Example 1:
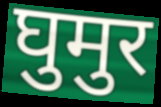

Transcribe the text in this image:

घुमुर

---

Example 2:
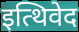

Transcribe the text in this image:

इत्थिवेद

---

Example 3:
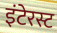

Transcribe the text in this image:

इंटेरस्ट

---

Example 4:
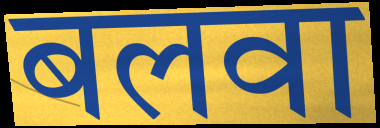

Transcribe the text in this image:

बलवा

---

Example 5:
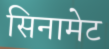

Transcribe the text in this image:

सिनामेट